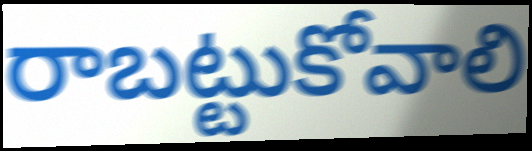
రాబట్టుకోవాలి